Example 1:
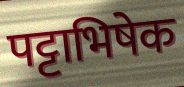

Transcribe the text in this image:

पट्टाभिषेक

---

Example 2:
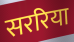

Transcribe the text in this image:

सररिया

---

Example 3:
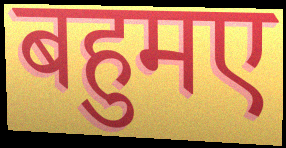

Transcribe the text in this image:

बहुमए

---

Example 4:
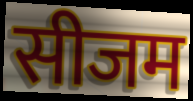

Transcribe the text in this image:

सीजम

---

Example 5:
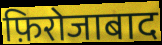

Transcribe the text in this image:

फ़िरोजाबाद